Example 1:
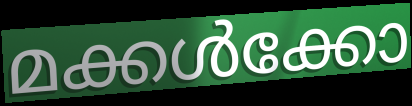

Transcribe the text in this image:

മക്കൾക്കോ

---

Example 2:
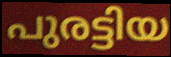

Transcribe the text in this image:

പുരട്ടിയ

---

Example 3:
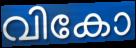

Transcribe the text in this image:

വികോ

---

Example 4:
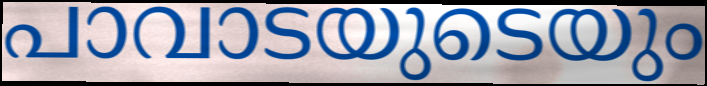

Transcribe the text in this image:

പാവാടയുടെയും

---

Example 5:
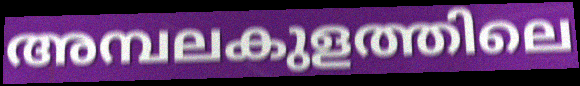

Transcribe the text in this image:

അമ്പലകുളത്തിലെ